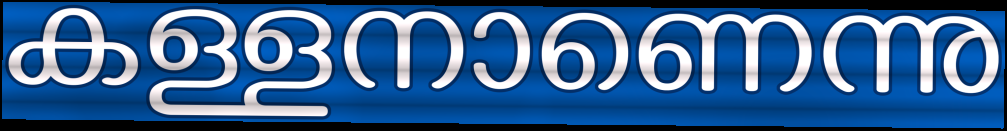
കള്ളനാണെന്നു